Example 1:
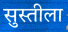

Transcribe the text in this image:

सुस्तीला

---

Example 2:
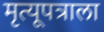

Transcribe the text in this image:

मृत्यूपत्राला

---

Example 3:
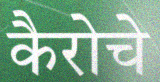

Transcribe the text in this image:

कैरोचे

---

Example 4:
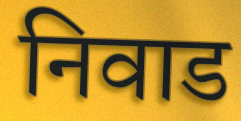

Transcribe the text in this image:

निवाड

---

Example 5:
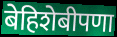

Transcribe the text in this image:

बेहिशेबीपणा